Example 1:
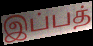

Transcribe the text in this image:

இப்பத்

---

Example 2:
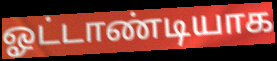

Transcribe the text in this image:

ஓட்டாண்டியாக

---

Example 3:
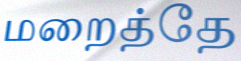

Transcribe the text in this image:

மறைத்தே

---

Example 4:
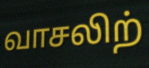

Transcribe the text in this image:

வாசலிற்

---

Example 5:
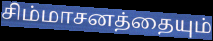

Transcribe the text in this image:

சிம்மாசனத்தையும்